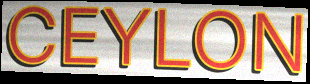
CEYLON